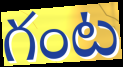
గంట